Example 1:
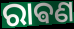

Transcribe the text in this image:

ରାଵଣ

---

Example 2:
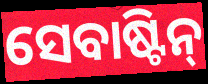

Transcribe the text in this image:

ସେବାଷ୍ଟିନ୍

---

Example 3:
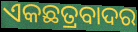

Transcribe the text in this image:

ଏକଛତ୍ରବାଦର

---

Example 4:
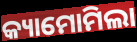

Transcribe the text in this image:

କ୍ୟାମୋମିଲା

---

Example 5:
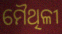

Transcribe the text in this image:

ମୈଥିଳୀ